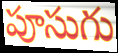
పూసుగు